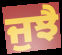
ਜੁਝੈ